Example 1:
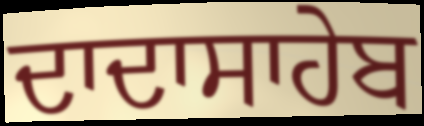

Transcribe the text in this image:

ਦਾਦਾਸਾਹੇਬ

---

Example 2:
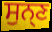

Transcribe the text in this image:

ਸੁਨ੍ਣ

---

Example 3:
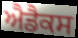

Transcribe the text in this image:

ਐਡੈਕਸ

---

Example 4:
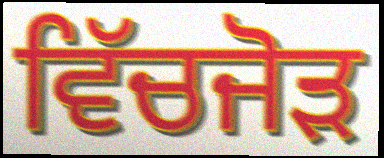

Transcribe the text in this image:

ਵਿੱਚਜੋੜ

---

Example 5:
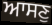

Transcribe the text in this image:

ਆਸਣੁ